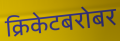
क्रिकेटबरोबर